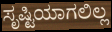
ಸೃಷ್ಟಿಯಾಗಲಿಲ್ಲ